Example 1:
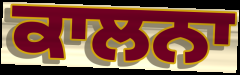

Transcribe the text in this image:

ਕਾਲਨਾ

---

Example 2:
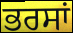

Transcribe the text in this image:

ਭਰਸਾਂ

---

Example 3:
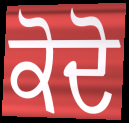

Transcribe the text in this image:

ਕੋਦੋ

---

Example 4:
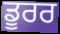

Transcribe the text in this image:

ਡੂਰਰ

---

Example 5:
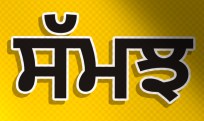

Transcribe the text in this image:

ਸੱਮਝ